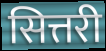
सित्तरी